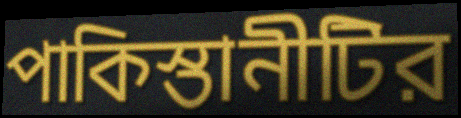
পাকিস্তানীটির